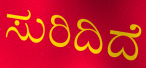
ಸುರಿದಿದೆ